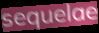
sequelae